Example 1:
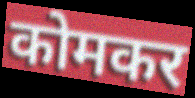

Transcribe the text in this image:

कोमकर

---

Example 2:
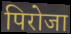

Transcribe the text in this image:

पिरोजा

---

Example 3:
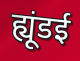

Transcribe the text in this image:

ह्यूंडई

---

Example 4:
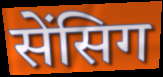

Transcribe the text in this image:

सेंसिग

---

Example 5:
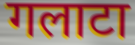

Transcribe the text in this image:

गलाटा